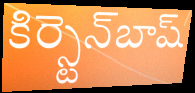
కిర్స్టెన్‌బాష్